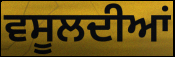
ਵਸੂਲਦੀਆਂ